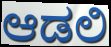
ಆಡಲಿ